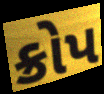
ક્રોપ